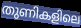
തുണികളിലെ